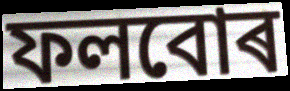
ফলবোৰ